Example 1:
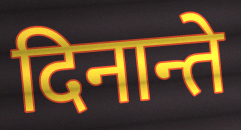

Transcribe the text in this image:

दिनान्ते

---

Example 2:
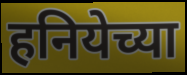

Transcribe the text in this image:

हनियेच्या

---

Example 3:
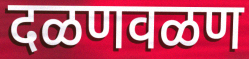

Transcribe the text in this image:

दळणवळण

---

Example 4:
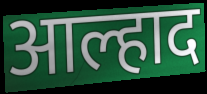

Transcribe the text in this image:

आल्हाद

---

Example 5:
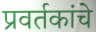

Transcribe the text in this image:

प्रवर्तकांचे